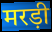
मरड़ी